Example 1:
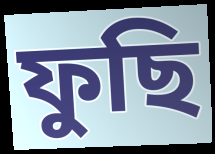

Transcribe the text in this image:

ফুছি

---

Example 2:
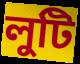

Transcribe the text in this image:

লুটি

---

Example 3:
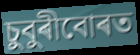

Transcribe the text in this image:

চুবুৰীবোৰত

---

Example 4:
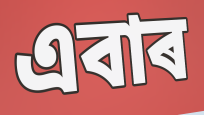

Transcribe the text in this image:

এবাৰ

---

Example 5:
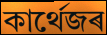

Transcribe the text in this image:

কাৰ্থেজৰ